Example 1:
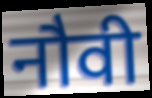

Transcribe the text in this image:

नौवी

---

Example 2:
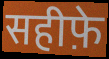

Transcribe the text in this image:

सहीफ़े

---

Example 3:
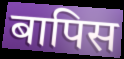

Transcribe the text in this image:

बापिस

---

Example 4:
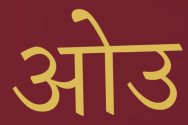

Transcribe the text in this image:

ओउ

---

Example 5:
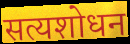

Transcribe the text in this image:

सत्यशोधन